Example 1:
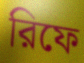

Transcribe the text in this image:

রিফে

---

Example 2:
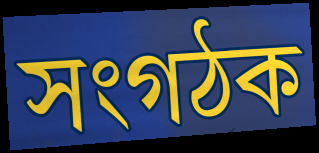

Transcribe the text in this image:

সংগঠক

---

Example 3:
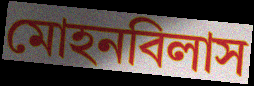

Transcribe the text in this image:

মোহনবিলাস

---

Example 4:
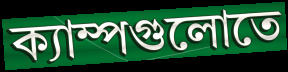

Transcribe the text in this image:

ক্যাম্পগুলোতে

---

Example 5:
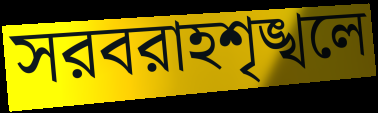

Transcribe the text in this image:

সরবরাহশৃঙ্খলে